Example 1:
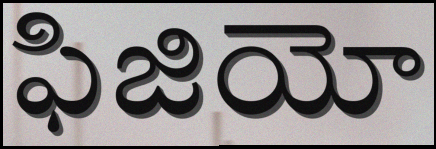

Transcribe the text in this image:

ఫిజియో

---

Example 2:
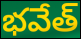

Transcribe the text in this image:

భవేత్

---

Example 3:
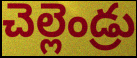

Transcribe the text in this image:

చెల్లెండ్రు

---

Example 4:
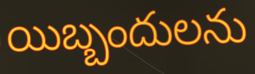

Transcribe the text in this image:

యిబ్బందులను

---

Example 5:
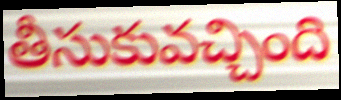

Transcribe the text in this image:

తీసుకువచ్చింది